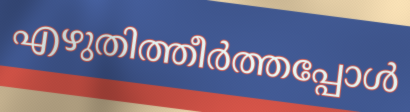
എഴുതിത്തീർത്തപ്പോൾ